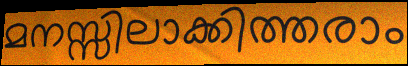
മനസ്സിലാക്കിത്തരാം